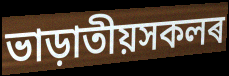
ভাড়াতীয়সকলৰ